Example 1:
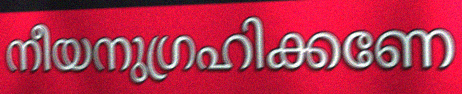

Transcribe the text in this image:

നീയനുഗ്രഹിക്കണേ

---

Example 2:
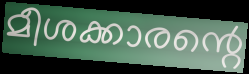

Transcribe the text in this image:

മീശക്കാരന്റെ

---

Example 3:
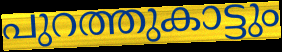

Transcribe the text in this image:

പുറത്തുകാട്ടും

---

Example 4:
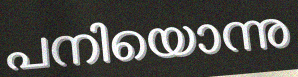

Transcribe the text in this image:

പനിയൊന്നു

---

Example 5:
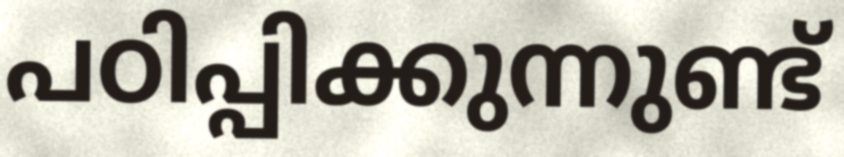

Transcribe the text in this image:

പഠിപ്പിക്കുന്നുണ്ട്